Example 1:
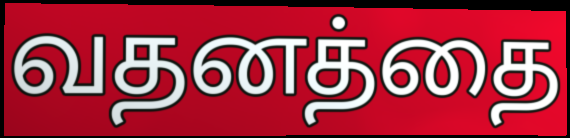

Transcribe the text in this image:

வதனத்தை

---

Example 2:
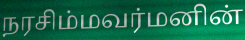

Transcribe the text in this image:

நரசிம்மவர்மனின்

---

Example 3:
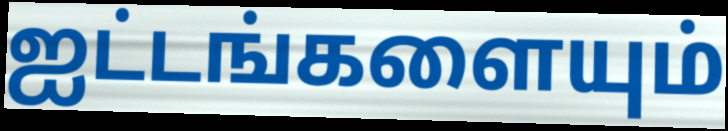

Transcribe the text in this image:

ஐட்டங்களையும்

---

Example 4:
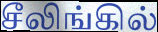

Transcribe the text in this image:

சீலிங்கில்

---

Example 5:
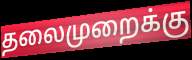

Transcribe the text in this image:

தலைமுறைக்கு